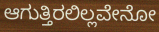
ಆಗುತ್ತಿರಲಿಲ್ಲವೇನೋ